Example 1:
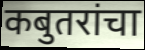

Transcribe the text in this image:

कबुतरांचा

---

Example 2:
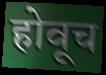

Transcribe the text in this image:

होवूच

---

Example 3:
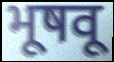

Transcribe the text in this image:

भूषवू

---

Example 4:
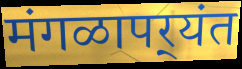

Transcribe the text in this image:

मंगळापर्यंत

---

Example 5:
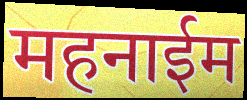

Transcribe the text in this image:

महनाईम